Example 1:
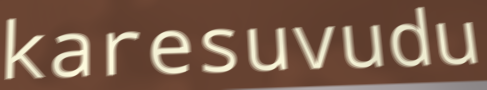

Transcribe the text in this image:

karesuvudu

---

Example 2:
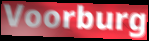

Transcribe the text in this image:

Voorburg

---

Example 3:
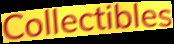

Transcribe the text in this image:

Collectibles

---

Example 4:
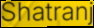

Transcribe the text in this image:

Shatranj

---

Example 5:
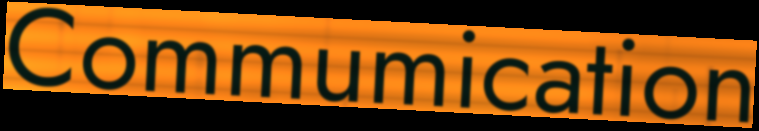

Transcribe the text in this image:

Commumication